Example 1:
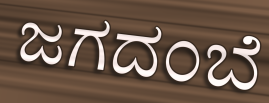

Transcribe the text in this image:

ಜಗದಂಬೆ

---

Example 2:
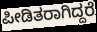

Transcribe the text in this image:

ಪೀಡಿತರಾಗಿದ್ದರೆ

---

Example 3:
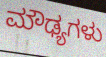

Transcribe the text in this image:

ಮೌಢ್ಯಗಳು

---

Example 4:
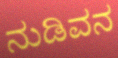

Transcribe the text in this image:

ನುಡಿವನ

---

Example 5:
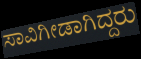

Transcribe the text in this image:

ಸಾವಿಗೀಡಾಗಿದ್ದರು